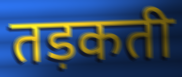
तड़कती